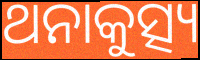
ଥନାକୁତ୍ସ୍ୟ